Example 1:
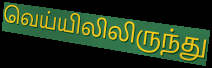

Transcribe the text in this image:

வெய்யிலிலிருந்து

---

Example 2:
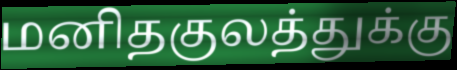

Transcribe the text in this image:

மனிதகுலத்துக்கு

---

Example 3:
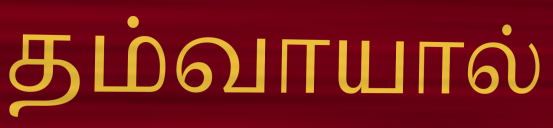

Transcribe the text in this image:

தம்வாயால்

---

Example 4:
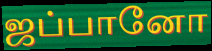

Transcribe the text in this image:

ஜப்பானோ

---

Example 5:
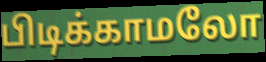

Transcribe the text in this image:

பிடிக்காமலோ